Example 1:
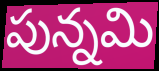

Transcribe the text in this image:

పున్నమి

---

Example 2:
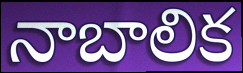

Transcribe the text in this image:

నాబాలిక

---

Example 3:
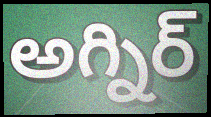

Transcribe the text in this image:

అగ్నిర్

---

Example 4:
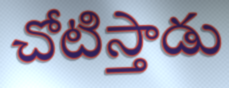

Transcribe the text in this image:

చోటిస్తాడు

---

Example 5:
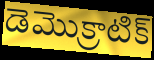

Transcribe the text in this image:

డెమొక్రాటిక్